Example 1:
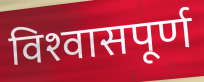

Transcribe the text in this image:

विश्वासपूर्ण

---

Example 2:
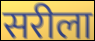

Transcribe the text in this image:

सरीला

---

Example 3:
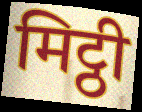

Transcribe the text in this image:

मिट्ठी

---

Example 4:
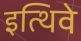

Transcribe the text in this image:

इत्थिवे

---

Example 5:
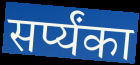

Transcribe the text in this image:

सर्प्यंका